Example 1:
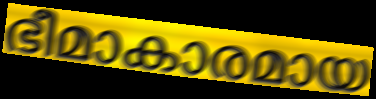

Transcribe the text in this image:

ഭീമാകാരമായ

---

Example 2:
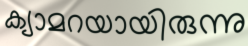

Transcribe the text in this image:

ക്യാമറയായിരുന്നു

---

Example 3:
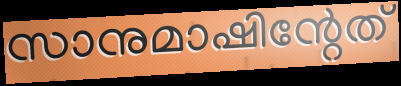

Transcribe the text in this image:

സാനുമാഷിന്റേത്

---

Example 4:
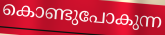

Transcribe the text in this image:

കൊണ്ടുപോകുന്ന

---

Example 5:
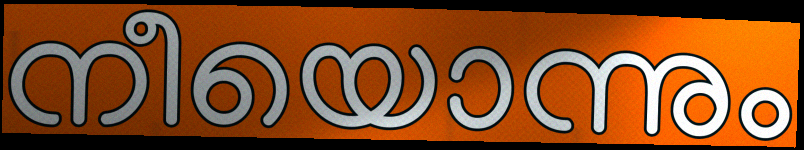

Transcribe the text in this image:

നീയൊന്നും